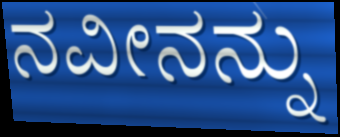
ನವೀನನ್ನು